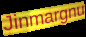
Jinmargnu